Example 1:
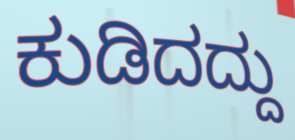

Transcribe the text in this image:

ಕುಡಿದದ್ದು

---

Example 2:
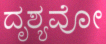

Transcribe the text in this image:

ದೃಶ್ಯವೋ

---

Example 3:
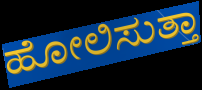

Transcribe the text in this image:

ಹೋಲಿಸುತ್ತಾ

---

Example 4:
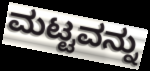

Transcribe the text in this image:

ಮಟ್ಟವನ್ನು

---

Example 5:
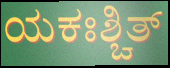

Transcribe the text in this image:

ಯಕಃಶ್ಚಿತ್